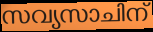
സവ്യസാചിന്